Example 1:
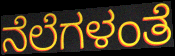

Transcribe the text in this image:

ನೆಲೆಗಳಂತೆ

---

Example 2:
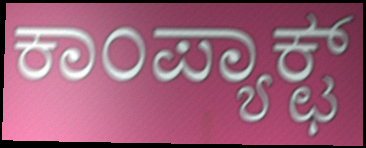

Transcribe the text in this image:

ಕಾಂಪ್ಯಾಕ್ಟ್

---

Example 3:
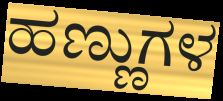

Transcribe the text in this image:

ಹಣ್ಣುಗಳ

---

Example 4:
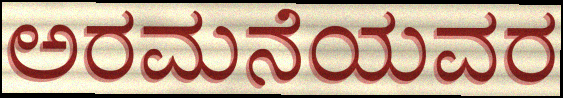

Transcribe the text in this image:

ಅರಮನೆಯವರ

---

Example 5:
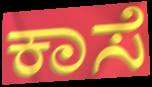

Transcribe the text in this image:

ಕಾಸೆ